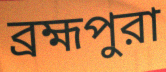
ব্রহ্মপুরা